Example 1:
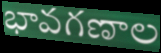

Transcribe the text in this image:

భావగణాల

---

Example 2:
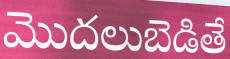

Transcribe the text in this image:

మొదలుబెడితే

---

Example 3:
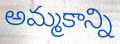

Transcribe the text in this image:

అమ్మకాన్ని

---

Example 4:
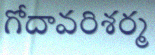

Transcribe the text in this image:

గోదావరిశర్మ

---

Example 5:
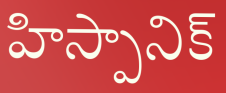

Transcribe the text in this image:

హిస్పానిక్